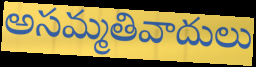
అసమ్మతివాదులు